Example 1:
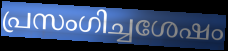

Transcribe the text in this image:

പ്രസംഗിച്ചശേഷം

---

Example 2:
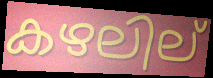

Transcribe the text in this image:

കഴലില്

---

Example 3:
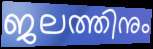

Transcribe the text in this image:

ജലത്തിനും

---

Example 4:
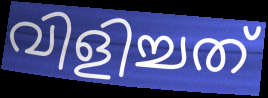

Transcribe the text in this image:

വിളിച്ചത്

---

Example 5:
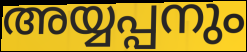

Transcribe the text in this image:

അയ്യപ്പനും